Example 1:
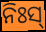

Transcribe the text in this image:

ନିଃସ୍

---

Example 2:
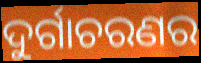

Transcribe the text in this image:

ଦୁର୍ଗାଚରଣର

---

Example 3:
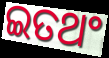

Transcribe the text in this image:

ଇତଥଂ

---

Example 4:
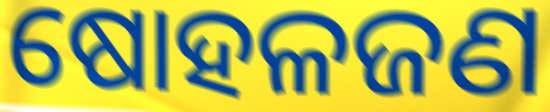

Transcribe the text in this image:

ଷୋହଳଜଣ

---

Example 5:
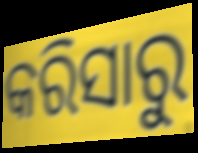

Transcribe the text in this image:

କରିସାରୁ